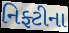
નિફ્ટીના